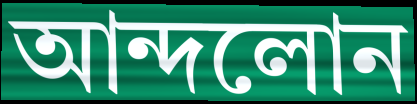
আন্দলোন